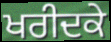
ਖਰੀਦਕੇ